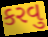
કરવુ